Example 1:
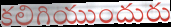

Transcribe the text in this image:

కలిగియుందురు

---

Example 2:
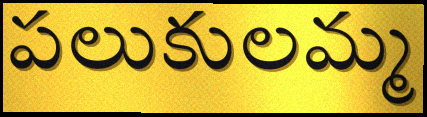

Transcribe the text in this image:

పలుకులమ్మ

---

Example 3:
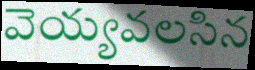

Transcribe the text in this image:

వెయ్యవలసిన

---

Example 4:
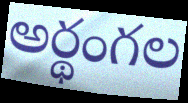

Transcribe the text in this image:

అర్థంగల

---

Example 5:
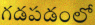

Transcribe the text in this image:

గడపడంలో